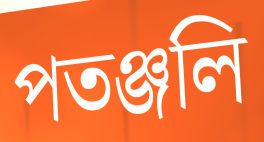
পতঞ্জলি